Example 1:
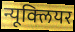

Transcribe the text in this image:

न्यूक्लियर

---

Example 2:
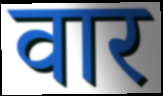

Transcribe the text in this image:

वार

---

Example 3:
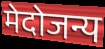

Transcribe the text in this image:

मेदोजन्य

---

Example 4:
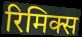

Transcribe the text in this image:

रिमिक्स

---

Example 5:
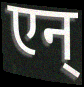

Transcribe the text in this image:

एन्